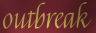
outbreak